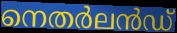
നെതർലൻഡ്